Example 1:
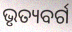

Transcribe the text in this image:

ଭୃତ୍ୟବର୍ଗ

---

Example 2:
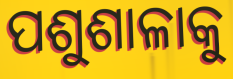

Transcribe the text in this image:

ପଶୁଶାଳାକୁ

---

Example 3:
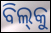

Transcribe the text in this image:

ବିଲ୍‌କୁ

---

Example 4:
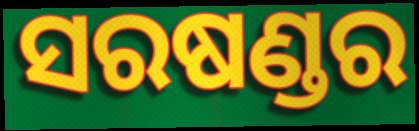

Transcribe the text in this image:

ସରଷଣ୍ଡର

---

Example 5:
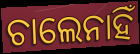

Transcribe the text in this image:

ଚାଲେନାହିଁ